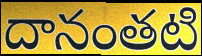
దానంతటి